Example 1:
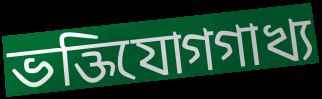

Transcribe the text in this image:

ভক্তিযোগগাখ্য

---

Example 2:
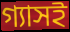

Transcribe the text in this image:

গ্যাসই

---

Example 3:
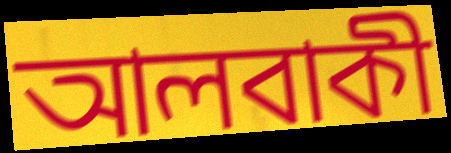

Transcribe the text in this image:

আলবাকী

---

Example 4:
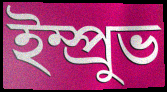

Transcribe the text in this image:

ইম্প্রুভ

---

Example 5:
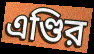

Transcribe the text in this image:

এণ্ডির